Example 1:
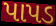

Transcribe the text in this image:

પાપડ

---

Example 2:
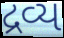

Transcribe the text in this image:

દ્રવ્ય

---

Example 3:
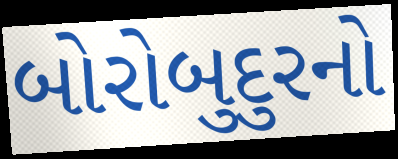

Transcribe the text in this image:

બોરોબુદુરનો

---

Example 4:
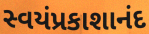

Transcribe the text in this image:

સ્વયંપ્રકાશાનંદ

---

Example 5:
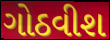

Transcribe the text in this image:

ગોઠવીશ